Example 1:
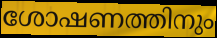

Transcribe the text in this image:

ശോഷണത്തിനും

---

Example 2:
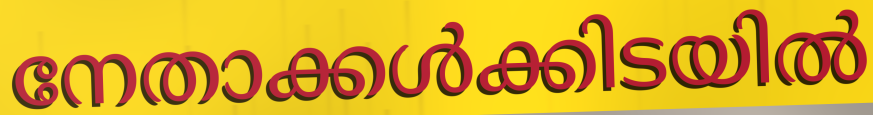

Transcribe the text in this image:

നേതാക്കൾക്കിടയിൽ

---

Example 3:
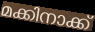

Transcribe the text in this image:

മക്കിനാക്ക്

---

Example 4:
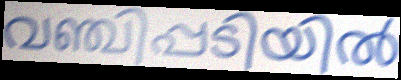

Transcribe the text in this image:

വഞ്ചിപ്പടിയിൽ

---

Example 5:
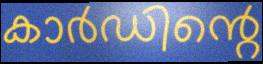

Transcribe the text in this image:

കാർഡിന്റെ